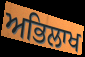
ਅਭਿਲਾਖ